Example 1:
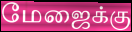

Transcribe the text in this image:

மேஜைக்கு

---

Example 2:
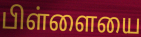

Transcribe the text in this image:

பிள்ளையை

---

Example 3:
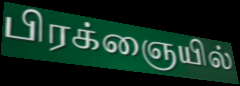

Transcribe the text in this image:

பிரக்ஞையில்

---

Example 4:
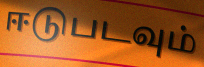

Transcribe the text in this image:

ஈடுபடவும்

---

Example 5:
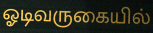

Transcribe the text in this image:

ஓடிவருகையில்